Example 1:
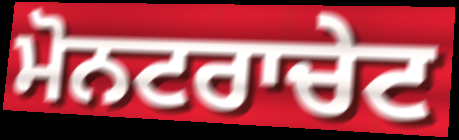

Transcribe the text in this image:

ਮੋਨਟਰਾਚੇਟ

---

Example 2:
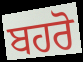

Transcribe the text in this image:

ਬਹਰੋ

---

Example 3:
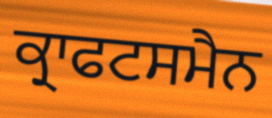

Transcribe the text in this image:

ਕ੍ਰਾਫਟਸਮੈਨ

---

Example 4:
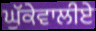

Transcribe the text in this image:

ਘੁੱਕੇਵਾਲੀਏ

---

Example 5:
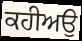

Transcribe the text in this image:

ਕਹੀਅਉ